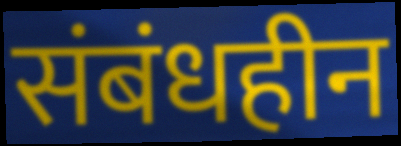
संबंधहीन